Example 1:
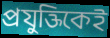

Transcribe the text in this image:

প্রযুক্তিকেই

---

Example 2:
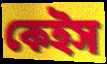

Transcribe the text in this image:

কেইস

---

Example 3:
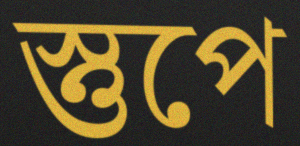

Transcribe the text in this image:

স্তুপে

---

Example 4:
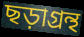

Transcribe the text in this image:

ছড়াগ্রন্থ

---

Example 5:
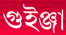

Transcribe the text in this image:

গুইঞ্জা